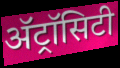
ॲट्रॉसिटी